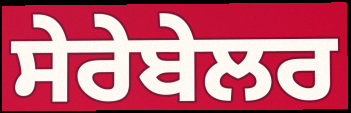
ਸੇਰੇਬੇਲਰ